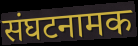
संघटनामक